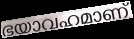
ഭയാവഹമാണ്